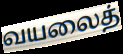
வயலைத்